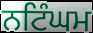
ਨਟਿੰਘਮ